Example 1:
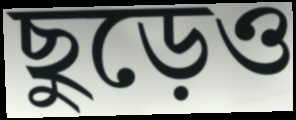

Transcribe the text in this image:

ছুড়েও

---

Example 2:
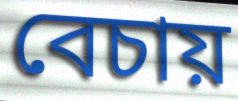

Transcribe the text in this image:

বেচায়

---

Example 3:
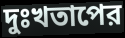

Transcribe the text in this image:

দুঃখতাপের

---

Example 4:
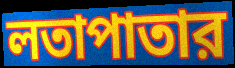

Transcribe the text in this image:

লতাপাতার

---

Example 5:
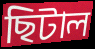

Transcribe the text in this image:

ছিটাল